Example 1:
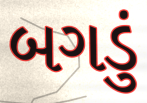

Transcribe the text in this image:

બગડું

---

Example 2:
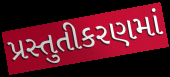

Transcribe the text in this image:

પ્રસ્તુતીકરણમાં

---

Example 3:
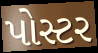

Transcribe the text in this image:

પોસ્ટર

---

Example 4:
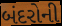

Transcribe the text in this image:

બંદરોની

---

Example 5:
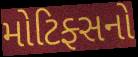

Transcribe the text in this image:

મોટિફ્સનો